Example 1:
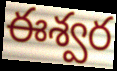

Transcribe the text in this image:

ఈశ్వర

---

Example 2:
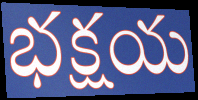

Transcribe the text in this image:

భక్షయ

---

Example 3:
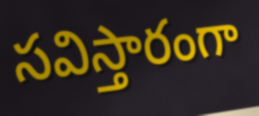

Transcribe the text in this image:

సవిస్తారంగా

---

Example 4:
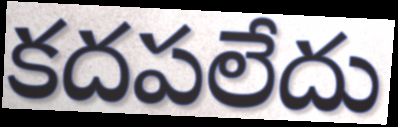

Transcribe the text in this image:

కదపలేదు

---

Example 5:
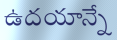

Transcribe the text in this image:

ఉదయాన్నే